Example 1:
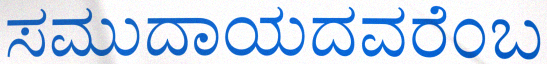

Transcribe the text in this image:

ಸಮುದಾಯದವರೆಂಬ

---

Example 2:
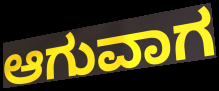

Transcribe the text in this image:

ಆಗುವಾಗ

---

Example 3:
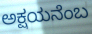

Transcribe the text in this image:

ಅಕ್ಷಯನೆಂಬ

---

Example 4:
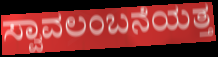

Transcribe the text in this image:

ಸ್ವಾವಲಂಬನೆಯತ್ತ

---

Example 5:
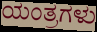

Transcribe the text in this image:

ಯಂತ್ರಗಳು